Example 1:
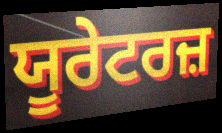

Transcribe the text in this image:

ਯੂਰੇਟਰਜ਼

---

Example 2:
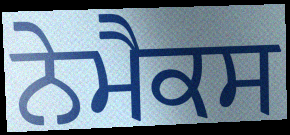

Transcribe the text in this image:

ਨੇਮੈਕਸ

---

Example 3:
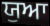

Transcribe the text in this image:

ਯੁਆ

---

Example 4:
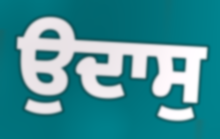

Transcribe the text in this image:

ਉਦਾਸੁ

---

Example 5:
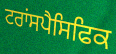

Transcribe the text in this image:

ਟਰਾਂਸਪੈਸਿਫਿਕ